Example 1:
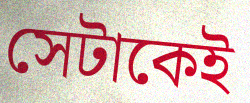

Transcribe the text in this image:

সেটাকেই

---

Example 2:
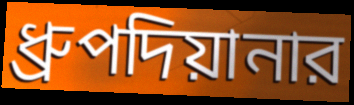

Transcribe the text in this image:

ধ্রুপদিয়ানার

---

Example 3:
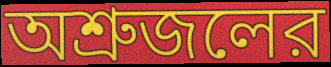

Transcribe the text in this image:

অশ্রুজলের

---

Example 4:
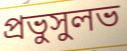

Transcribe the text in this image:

প্রভুসুলভ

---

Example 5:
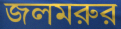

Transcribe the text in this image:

জলমরুর